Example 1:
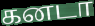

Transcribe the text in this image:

கனடா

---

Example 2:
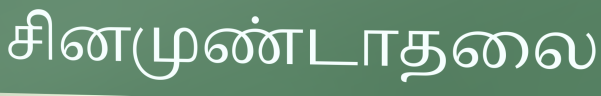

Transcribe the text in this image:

சினமுண்டாதலை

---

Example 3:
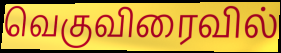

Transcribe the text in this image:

வெகுவிரைவில்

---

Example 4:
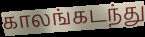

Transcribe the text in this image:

காலங்கடந்து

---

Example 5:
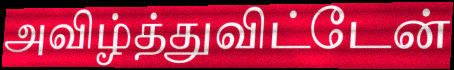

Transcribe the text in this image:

அவிழ்த்துவிட்டேன்